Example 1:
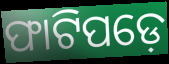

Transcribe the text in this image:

ଫାଟିପଡ଼େ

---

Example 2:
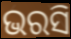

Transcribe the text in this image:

ଭରସି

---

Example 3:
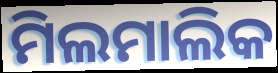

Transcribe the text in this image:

ମିଲମାଲିକ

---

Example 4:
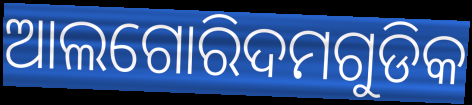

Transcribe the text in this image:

ଆଲଗୋରିଦମଗୁଡିକ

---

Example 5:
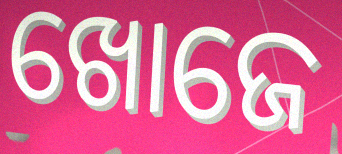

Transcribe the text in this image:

ଖୋଜେ